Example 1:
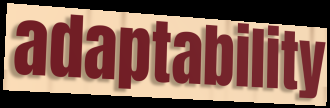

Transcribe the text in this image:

adaptability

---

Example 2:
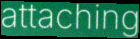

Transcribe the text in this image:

attaching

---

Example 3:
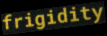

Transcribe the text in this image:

frigidity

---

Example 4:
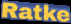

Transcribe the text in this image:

Ratke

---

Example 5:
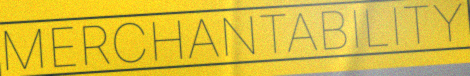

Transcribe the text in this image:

MERCHANTABILITY